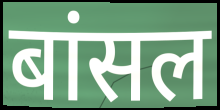
बांसल